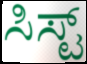
ಸಿಸ್ಟ್